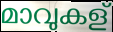
മാവുകള്